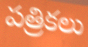
పత్రికలు